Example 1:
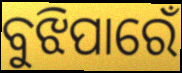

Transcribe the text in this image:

ବୁଝିପାରେଁ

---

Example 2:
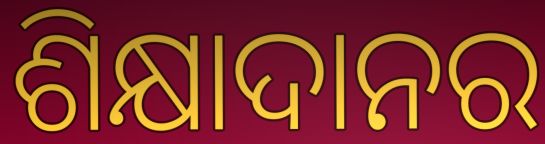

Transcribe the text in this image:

ଶିକ୍ଷାଦାନର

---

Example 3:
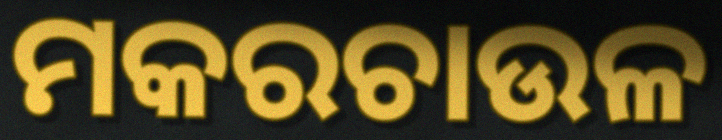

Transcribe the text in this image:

ମକରଚାଉଳ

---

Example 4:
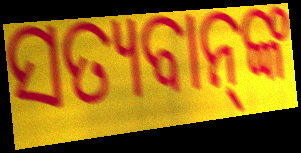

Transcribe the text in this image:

ସତ୍ୟବାନ୍‌ଙ୍କ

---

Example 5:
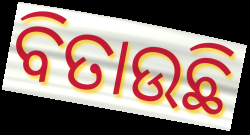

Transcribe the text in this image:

ବିତାଉଛି